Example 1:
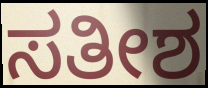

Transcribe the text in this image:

ಸತೀಶ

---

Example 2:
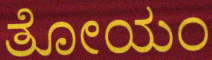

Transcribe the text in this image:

ತೋಯಂ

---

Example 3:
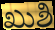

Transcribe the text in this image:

ಖುಶಿ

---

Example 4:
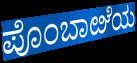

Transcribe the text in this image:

ಪೊಂಬಾೞೆಯ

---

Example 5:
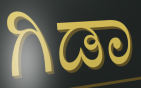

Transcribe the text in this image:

ಗಿಡಾ